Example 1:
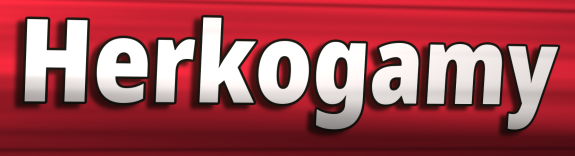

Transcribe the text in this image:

Herkogamy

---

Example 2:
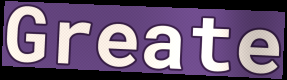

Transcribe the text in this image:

Greate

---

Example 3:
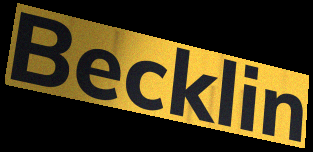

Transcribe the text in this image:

Becklin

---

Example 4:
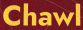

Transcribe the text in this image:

Chawl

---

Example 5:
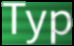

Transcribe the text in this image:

Typ